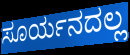
ಸೂರ್ಯನದಲ್ಲ